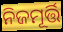
ନିଜମୂର୍ତ୍ତି